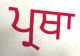
ਪ੍ਰਥਾ